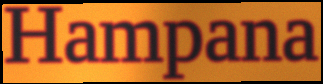
Hampana